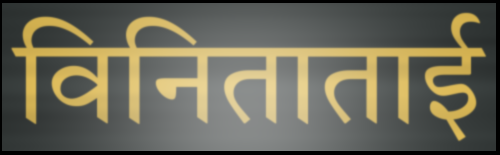
विनिताताई